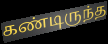
கண்டிருந்த